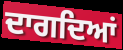
ਦਾਗਦਿਆਂ